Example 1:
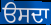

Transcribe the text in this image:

ੳਸਦਾ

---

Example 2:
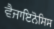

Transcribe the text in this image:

ਵੈਜਾਇਨੋਸਿਸ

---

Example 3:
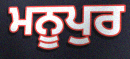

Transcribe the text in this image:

ਮਨੂਪੁਰ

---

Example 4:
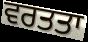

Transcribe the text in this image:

ਵਰਤਤਾ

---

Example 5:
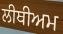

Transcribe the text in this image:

ਲੀਥੀਅਮ